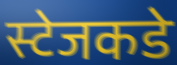
स्टेजकडे